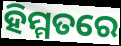
ହିମ୍ମତରେ